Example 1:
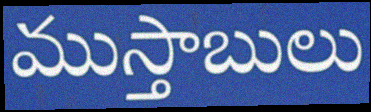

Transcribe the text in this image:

ముస్తాబులు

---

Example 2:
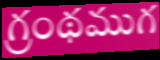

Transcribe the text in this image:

గ్రంథముగ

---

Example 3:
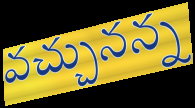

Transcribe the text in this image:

వచ్చునన్న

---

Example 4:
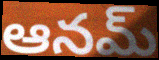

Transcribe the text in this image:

ఆనమ్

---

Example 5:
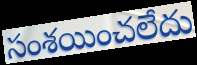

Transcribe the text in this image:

సంశయించలేదు